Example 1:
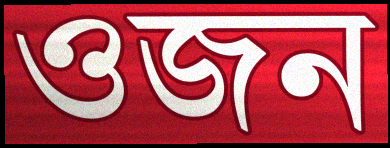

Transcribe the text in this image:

ওজন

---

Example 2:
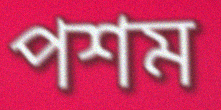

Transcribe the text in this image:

পশম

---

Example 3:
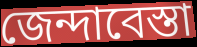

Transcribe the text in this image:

জেন্দাবেস্তা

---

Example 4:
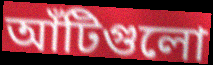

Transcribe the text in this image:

আঁটিগুলো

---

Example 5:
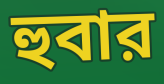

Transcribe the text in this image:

হুবার